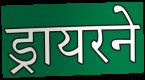
ड्रायरने